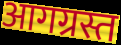
आगग्रस्त